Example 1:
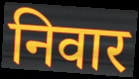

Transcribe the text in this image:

निवार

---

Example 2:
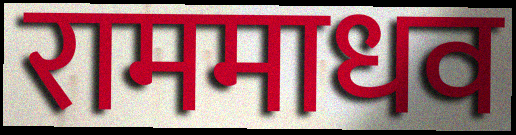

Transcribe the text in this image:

राममाधव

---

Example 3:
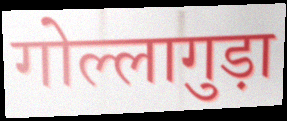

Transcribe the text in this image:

गोल्लागुड़ा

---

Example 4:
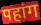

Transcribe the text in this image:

पहांग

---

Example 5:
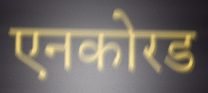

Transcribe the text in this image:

एनकोरड